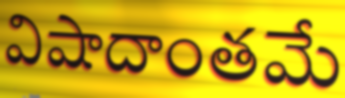
విషాదాంతమే